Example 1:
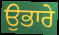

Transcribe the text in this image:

ਉਭਾਰੇ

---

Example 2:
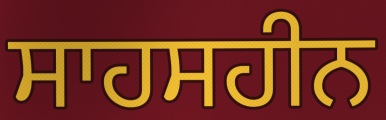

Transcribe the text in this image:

ਸਾਹਸਹੀਨ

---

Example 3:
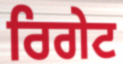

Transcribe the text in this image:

ਰਿਗੇਟ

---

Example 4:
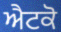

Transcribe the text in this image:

ਐਟਕੋ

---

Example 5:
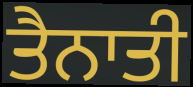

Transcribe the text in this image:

ਤੈਨਾਤੀ